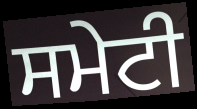
ਸਮੇਟੀ